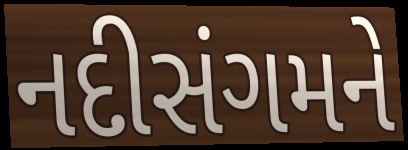
નદીસંગમને